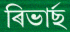
ৰিভাৰ্ছ